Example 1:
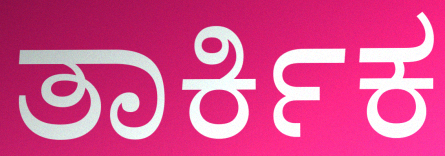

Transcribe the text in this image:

ತಾರ್ಕಿಕ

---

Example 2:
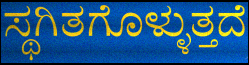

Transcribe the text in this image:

ಸ್ಥಗಿತಗೊಳ್ಳುತ್ತದೆ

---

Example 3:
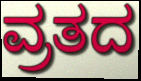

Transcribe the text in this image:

ವ್ರತದ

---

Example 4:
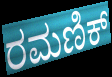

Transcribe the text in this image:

ರಮಣಿಕ್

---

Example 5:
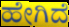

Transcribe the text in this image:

ಹೇಗಿದೆ